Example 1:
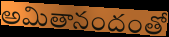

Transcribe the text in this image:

అమితానందంతో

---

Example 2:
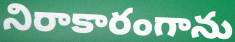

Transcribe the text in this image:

నిరాకారంగాను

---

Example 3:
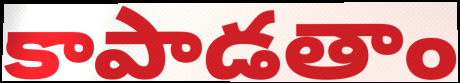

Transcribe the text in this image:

కాపాడతాం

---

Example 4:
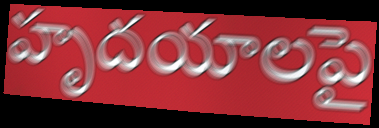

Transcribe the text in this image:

హృదయాలపై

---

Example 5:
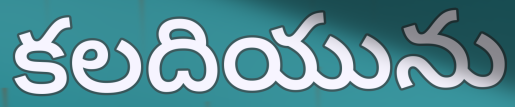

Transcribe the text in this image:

కలదియును